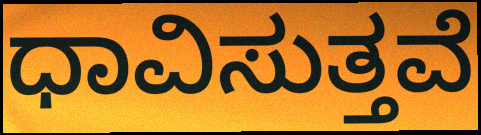
ಧಾವಿಸುತ್ತವೆ